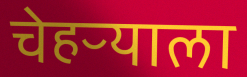
चेहऱ्याला